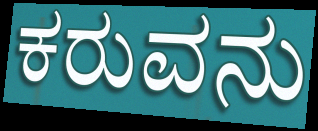
ಕರುವನು